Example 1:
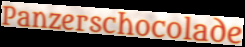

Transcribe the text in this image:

Panzerschocolade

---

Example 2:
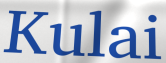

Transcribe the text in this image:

Kulai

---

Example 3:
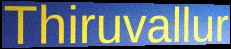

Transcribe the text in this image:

Thiruvallur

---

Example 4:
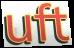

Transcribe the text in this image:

uft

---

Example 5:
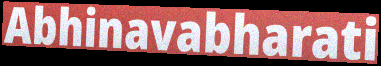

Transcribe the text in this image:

Abhinavabharati